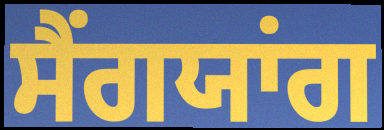
ਸੈਂਗਯਾਂਗ